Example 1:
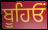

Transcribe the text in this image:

ਬੂਹਿਓਂ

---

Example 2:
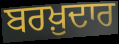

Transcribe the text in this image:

ਬਰਖ਼ੁਦਾਰ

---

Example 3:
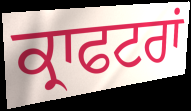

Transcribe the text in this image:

ਕ੍ਰਾਫਟਰਾਂ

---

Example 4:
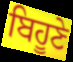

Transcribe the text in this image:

ਬਿਹੂਣੇ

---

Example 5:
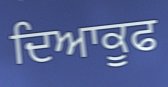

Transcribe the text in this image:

ਦਿਆਕੂਫ